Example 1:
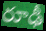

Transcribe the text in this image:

రూఢీ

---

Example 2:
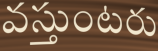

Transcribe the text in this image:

వస్తుంటరు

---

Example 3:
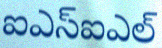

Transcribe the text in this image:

ఐఎస్ఐఎల్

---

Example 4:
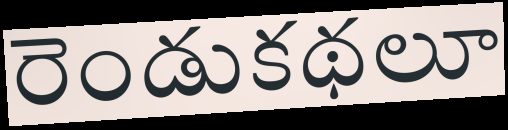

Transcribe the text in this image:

రెండుకథలూ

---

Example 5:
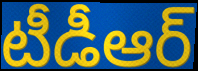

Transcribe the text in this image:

టీడీఆర్